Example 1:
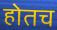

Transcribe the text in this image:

होतच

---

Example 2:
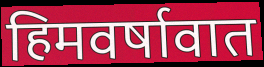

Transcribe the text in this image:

हिमवर्षावात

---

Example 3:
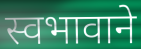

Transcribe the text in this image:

स्वभावाने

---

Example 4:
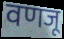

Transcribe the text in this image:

वणजू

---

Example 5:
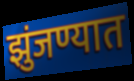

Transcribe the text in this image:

झुंजण्यात